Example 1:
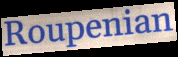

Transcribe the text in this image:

Roupenian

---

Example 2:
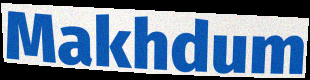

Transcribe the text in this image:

Makhdum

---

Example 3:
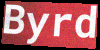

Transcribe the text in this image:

Byrd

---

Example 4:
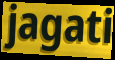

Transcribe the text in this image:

jagati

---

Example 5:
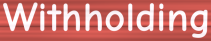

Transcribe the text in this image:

Withholding